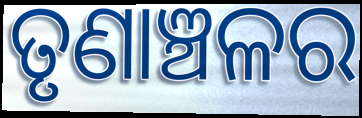
ତୃଣାଞ୍ଚଳର